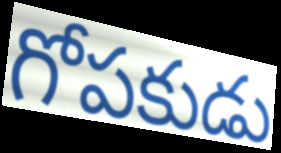
గోపకుడు